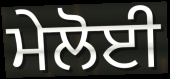
ਮੇਲੋਈ